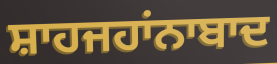
ਸ਼ਾਹਜਹਾਂਨਾਬਾਦ